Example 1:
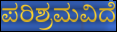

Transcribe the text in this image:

ಪರಿಶ್ರಮವಿದೆ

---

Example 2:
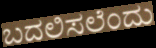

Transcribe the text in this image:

ಬದಲಿಸಲೆಂದು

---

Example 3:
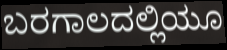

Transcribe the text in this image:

ಬರಗಾಲದಲ್ಲಿಯೂ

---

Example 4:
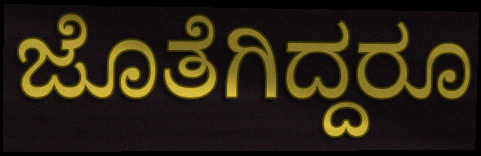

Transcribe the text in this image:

ಜೊತೆಗಿದ್ದರೂ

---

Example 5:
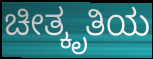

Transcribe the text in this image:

ಚೀತ್ಕೃತಿಯ